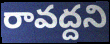
రావద్దని